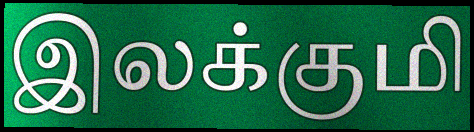
இலக்குமி